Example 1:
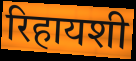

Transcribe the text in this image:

रिहायशी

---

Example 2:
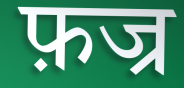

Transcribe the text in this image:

फ़ज्र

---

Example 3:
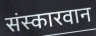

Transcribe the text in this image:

संस्कारवान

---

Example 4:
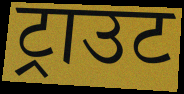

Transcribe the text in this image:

ट्राउट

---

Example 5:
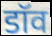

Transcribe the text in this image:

डॉव